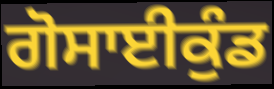
ਗੋਸਾਈਕੁੰਡ